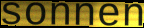
sonnen